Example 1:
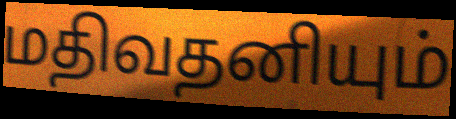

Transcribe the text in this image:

மதிவதனியும்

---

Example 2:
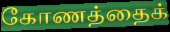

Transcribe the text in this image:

கோணத்தைக்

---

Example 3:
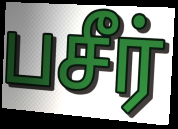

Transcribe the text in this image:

பசீர்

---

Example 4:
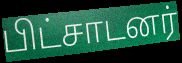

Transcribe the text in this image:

பிட்சாடனர்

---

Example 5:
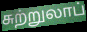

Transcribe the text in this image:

சுற்றுலாப்